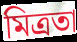
মিত্ৰতা